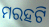
ମରହଟି